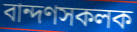
বান্দণসকলক